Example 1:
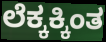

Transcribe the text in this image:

ಲೆಕ್ಕಕ್ಕಿಂತ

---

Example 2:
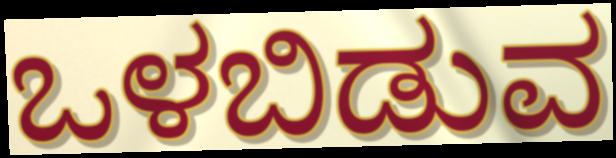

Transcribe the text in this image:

ಒಳಬಿಡುವ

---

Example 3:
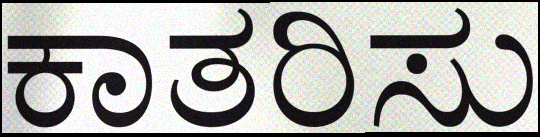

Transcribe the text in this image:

ಕಾತರಿಸು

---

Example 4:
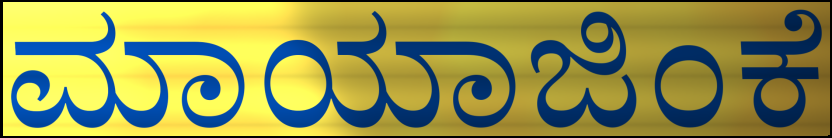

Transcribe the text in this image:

ಮಾಯಾಜಿಂಕೆ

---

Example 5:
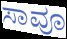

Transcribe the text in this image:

ಸಾವೂ